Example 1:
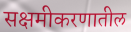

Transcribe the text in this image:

सक्षमीकरणातील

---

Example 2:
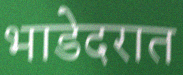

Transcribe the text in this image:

भाडेदरात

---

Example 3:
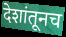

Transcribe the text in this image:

देशांतूनच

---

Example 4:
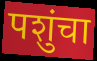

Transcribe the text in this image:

पशुंचा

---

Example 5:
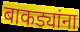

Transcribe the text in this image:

बाकड्यांना